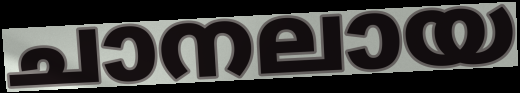
ചാനലായ